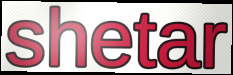
shetar